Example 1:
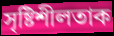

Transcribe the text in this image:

সৃষ্টিশীলতাক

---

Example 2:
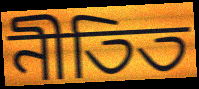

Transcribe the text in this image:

নীতিত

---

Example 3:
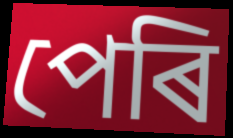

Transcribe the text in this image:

পেৰি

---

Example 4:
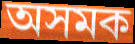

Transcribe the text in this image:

অসমক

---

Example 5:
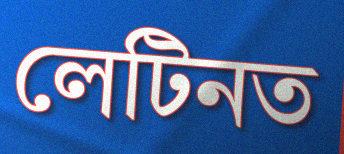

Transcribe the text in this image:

লেটিনত